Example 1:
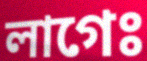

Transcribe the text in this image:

লাগেঃ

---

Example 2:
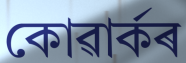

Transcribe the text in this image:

কোৱাৰ্কৰ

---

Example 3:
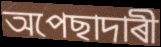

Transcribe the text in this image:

অপেছাদাৰী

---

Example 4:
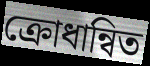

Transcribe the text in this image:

ক্ৰোধান্বিত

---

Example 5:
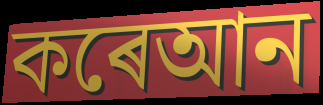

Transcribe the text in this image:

কৰেআন